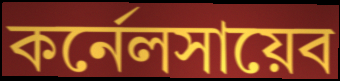
কর্নেলসায়েব